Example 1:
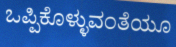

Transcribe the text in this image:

ಒಪ್ಪಿಕೊಳ್ಳುವಂತೆಯೂ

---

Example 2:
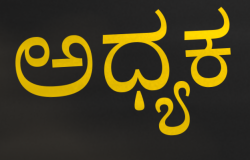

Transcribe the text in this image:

ಅಧ್ಯಕ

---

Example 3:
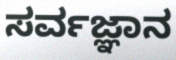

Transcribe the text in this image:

ಸರ್ವಜ್ಞಾನ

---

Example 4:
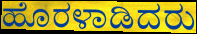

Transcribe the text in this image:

ಹೊರಳಾಡಿದರು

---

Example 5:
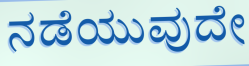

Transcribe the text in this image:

ನಡೆಯುವುದೇ